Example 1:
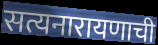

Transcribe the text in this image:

सत्यनारायणाची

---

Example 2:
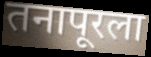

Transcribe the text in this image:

तनापूरला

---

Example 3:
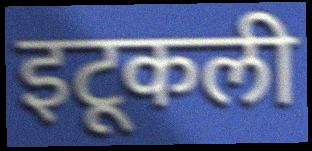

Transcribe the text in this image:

इटूकली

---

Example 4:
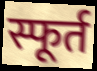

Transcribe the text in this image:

स्फूर्त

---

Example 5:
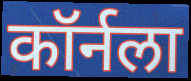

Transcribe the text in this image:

कॉर्नला